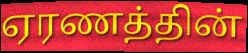
ஏரணத்தின்